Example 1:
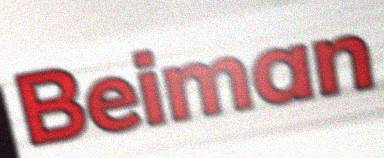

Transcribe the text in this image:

Beiman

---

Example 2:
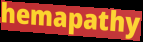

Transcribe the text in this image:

hemapathy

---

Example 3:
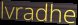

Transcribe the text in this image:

lvradhe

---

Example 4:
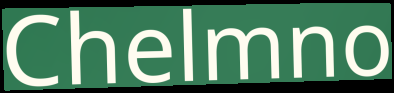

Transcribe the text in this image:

Chelmno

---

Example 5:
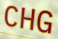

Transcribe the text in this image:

CHG